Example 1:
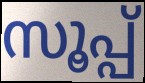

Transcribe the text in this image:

സൂപ്പ്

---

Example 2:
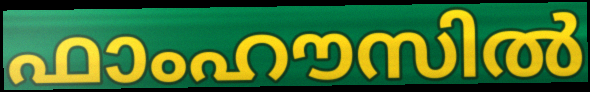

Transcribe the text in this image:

ഫാംഹൗസിൽ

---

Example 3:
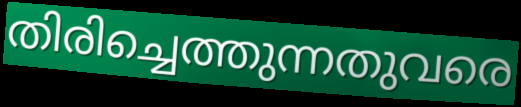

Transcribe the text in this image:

തിരിച്ചെത്തുന്നതുവരെ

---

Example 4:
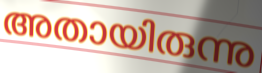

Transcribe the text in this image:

അതായിരുന്നു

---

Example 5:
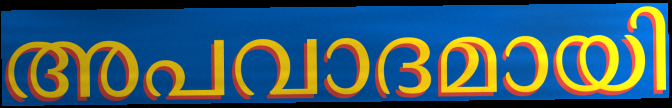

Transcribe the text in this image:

അപവാദമായി